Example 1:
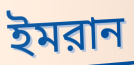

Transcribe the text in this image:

ইমরান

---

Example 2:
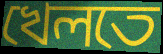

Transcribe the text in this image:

খেলতে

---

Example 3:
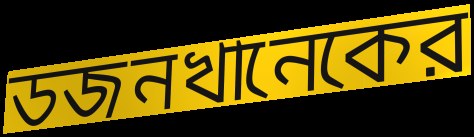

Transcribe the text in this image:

ডজনখানেকের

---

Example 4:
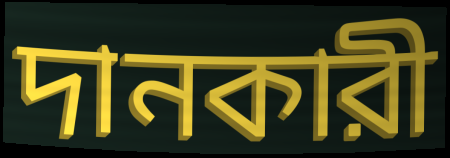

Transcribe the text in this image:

দানকারী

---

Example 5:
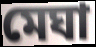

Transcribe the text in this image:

মেঘা